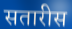
सतारीस